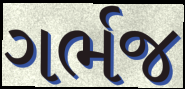
ગર્ભજ